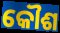
କୌଶ